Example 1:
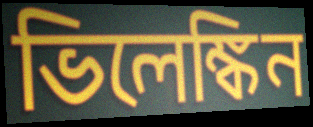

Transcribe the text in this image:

ভিলেঙ্কিন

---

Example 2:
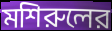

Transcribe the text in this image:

মশিরুলের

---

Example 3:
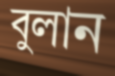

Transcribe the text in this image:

বুলান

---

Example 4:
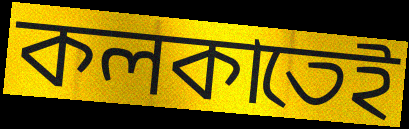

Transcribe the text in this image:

কলকাতেই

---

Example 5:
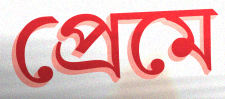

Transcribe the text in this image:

প্রেমে